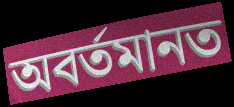
অবৰ্তমানত